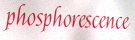
phosphorescence